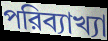
পরিব্যাখ্যা